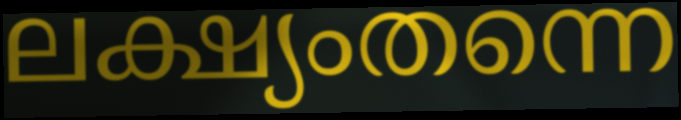
ലക്ഷ്യംതന്നെ